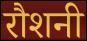
रौशनी